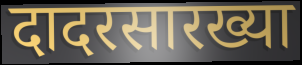
दादरसारख्या